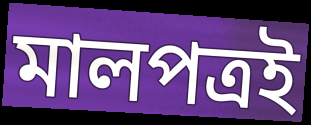
মালপত্রই